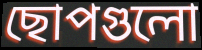
ছোপগুলো